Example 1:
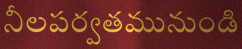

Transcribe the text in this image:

నీలపర్వతమునుండి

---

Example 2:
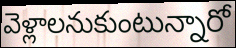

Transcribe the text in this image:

వెళ్లాలనుకుంటున్నారో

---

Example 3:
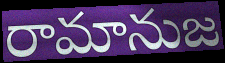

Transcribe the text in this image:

రామానుజ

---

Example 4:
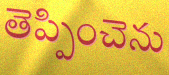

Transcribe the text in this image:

తెప్పించెను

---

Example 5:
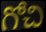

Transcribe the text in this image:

గోచి